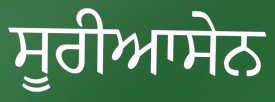
ਸੂਰੀਆਸੇਨ